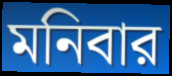
মনিবার